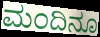
ಮಂದಿನೂ